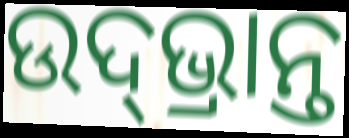
ଉଦ୍‌ଭ୍ରାନ୍ତ